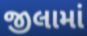
જીલામાં